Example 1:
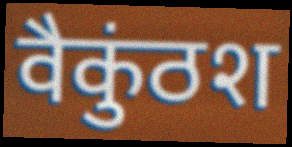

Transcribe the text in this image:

वैकुंठश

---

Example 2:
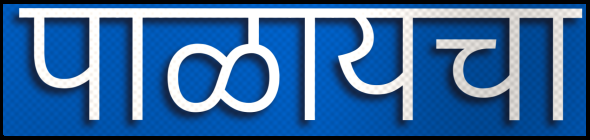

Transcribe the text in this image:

पाळायचा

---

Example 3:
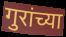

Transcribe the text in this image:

गुरांच्या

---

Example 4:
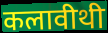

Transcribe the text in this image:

कलावीथी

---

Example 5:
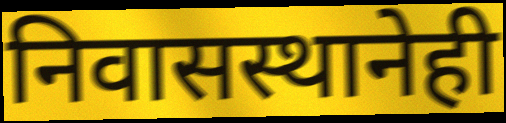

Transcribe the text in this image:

निवासस्थानेही